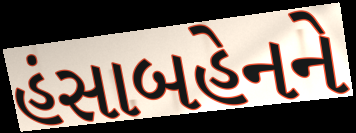
હંસાબહેનને